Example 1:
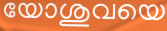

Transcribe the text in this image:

യോശുവയെ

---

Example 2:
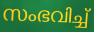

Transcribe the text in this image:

സംഭവിച്ച്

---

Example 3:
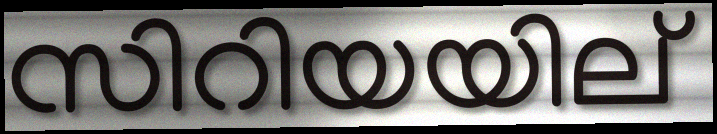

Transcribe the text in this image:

സിറിയയില്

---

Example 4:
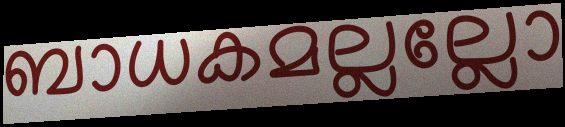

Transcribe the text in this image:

ബാധകമല്ലല്ലോ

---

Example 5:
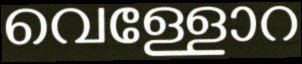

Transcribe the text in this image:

വെള്ളോറ